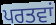
ਪਰਤਵਾਂ